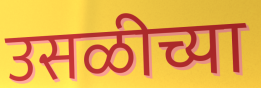
उसळीच्या